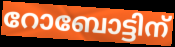
റോബോട്ടിന്